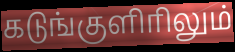
கடுங்குளிரிலும்